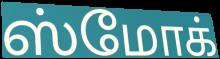
ஸ்மோக்